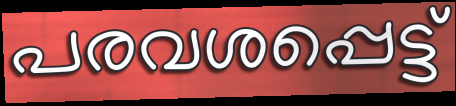
പരവശപ്പെട്ട്